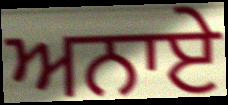
ਅਨਾਏ